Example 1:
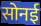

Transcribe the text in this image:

सोनई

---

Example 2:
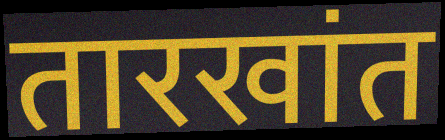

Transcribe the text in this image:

तारखांत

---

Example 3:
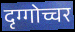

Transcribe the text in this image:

दृग्गोच्चर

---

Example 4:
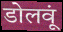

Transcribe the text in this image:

डोलवूं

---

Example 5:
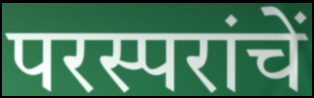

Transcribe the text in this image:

परस्परांचें